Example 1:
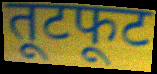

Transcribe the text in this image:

तूटफूट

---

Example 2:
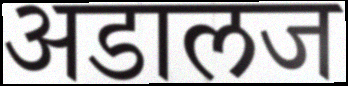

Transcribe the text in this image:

अडालज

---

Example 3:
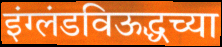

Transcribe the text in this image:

इंग्लंडविऊद्धच्या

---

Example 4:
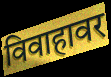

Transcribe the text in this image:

विवाहावर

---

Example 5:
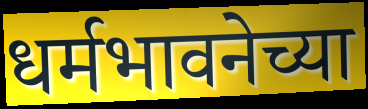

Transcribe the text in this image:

धर्मभावनेच्या